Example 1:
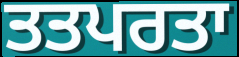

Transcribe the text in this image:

ਤਤਪਰਤਾ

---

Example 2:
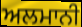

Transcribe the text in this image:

ਅਲਮਾਨੀ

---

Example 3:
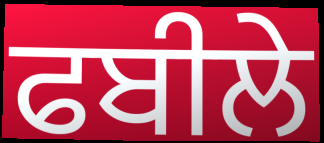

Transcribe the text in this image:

ਫਬੀਲੇ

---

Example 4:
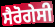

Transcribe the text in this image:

ਸੈਰੋਗੇਸੀ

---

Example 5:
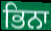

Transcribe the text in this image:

ਭਿਨਾ